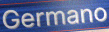
Germano